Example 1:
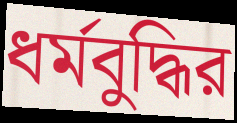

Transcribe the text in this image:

ধর্মবুদ্ধির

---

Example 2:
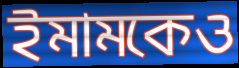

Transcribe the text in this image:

ইমামকেও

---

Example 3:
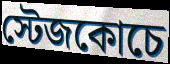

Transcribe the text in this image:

স্টেজকোচে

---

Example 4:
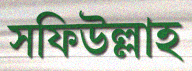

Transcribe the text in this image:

সফিউল্লাহ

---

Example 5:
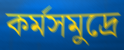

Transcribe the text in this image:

কর্মসমুদ্রে